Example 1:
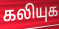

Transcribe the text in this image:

கலியுக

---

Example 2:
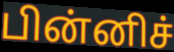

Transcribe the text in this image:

பின்னிச்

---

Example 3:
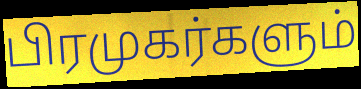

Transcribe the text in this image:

பிரமுகர்களும்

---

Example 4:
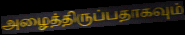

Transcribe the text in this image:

அழைத்திருப்பதாகவும்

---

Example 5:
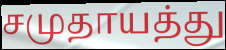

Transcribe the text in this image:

சமுதாயத்து